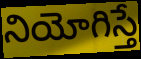
నియోగిస్తే